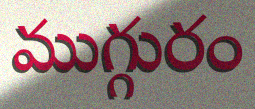
ముగ్గురం